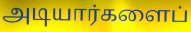
அடியார்களைப்